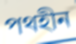
পথহীন